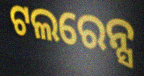
ଟଲରେନ୍ସ